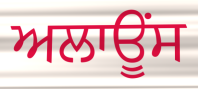
ਅਲਾਊੰਸ